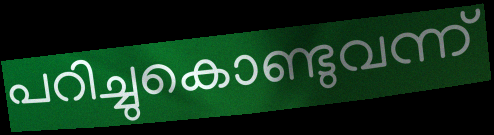
പറിച്ചുകൊണ്ടുവന്ന്